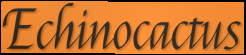
Echinocactus